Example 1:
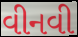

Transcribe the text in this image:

વીનવી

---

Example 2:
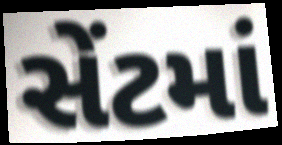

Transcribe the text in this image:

સેંટમાં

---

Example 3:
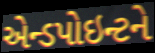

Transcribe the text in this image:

એન્ડપોઇન્ટને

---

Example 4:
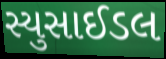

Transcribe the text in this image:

સ્યુસાઈડલ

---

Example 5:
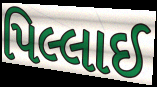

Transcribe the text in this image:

પિલ્લાઈ